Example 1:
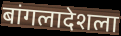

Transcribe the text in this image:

बांगलादेशला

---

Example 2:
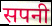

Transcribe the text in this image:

सपनी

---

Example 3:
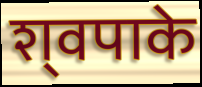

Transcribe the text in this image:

श्वपाके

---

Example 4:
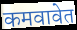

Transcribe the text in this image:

कमवावेत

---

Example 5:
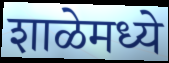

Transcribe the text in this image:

शाळेमध्ये